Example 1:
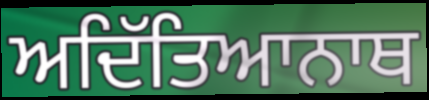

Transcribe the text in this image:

ਅਦਿੱਤਿਆਨਾਥ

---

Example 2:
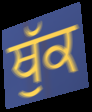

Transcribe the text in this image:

ਥੁੱਕ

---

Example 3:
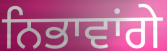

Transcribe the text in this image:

ਨਿਭਾਵਾਂਗੇ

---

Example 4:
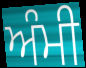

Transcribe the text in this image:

ਅੰਮੀ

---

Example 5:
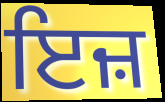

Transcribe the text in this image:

ਇਜ਼